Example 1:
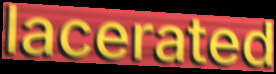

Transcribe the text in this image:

lacerated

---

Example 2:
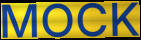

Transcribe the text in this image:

MOCK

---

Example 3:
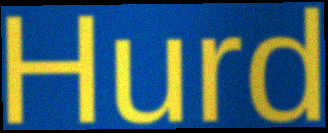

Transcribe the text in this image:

Hurd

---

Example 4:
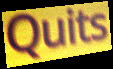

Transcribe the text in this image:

Quits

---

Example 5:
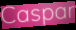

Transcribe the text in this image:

Caspar